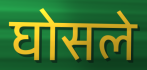
घोसले